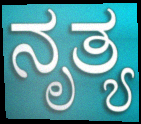
ನೃತ್ಯ